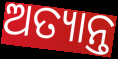
ଅତ୍ୟାନ୍ତ